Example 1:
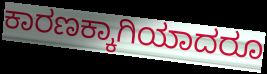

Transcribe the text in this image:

ಕಾರಣಕ್ಕಾಗಿಯಾದರೂ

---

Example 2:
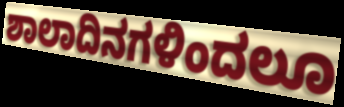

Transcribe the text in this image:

ಶಾಲಾದಿನಗಳಿಂದಲೂ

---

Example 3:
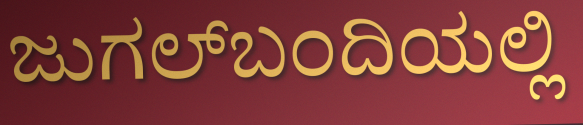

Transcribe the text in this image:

ಜುಗಲ್‌ಬಂದಿಯಲ್ಲಿ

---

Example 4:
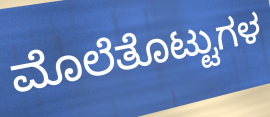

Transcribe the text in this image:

ಮೊಲೆತೊಟ್ಟುಗಳ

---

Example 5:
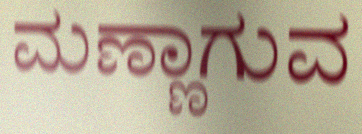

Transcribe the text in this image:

ಮಣ್ಣಾಗುವ